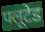
फ्लूटेड